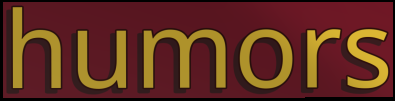
humors